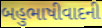
બહુભાષીવાદની